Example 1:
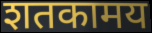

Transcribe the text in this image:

शतकामय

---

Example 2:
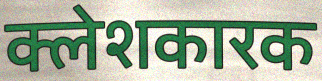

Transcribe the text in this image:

क्लेशकारक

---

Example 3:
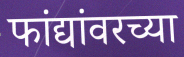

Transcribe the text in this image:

फांद्यांवरच्या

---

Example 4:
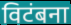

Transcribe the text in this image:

विटंबना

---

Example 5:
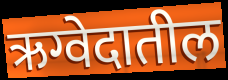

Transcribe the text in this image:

ऋग्वेदातील